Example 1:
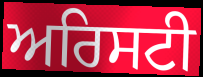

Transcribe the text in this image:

ਅਰਿਸਟੀ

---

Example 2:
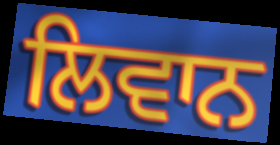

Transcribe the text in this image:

ਲਿਵਾਨ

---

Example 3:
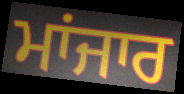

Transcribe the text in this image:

ਮਾਂਜਾਰ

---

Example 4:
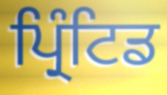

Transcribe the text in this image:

ਪ੍ਰਿੰਟਿਡ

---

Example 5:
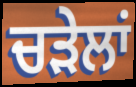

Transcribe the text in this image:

ਚੜੇਲਾਂ